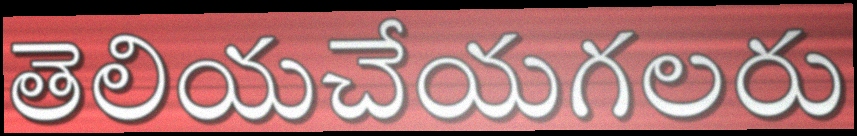
తెలియచేయగలరు